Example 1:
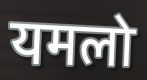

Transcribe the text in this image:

यमलो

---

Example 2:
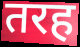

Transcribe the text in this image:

तरह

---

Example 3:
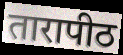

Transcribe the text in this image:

तारापीठ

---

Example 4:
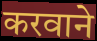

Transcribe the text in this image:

करवाने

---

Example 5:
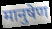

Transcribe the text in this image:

मानुषेण